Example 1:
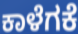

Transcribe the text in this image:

ಕಾಳೆಗಕೆ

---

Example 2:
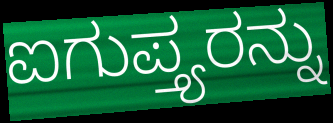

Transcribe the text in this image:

ಐಗುಪ್ತ್ಯರನ್ನು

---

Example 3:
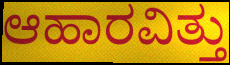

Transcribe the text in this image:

ಆಹಾರವಿತ್ತು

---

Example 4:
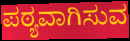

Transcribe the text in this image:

ಪಠ್ಯವಾಗಿಸುವ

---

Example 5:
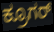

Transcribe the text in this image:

ಕ್ರೂಗರ್